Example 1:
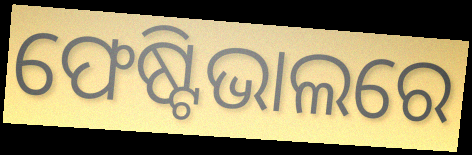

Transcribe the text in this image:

ଫେଷ୍ଟିଭାଲରେ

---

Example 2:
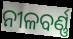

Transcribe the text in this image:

ନୀଳବର୍ଣ୍ଣ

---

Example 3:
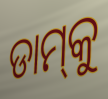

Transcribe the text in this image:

ଡାମ୍‍କୁ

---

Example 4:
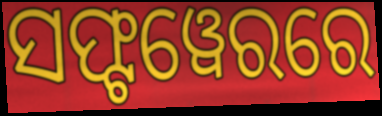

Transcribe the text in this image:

ସଫ୍ଟୱେରରେ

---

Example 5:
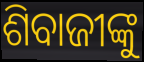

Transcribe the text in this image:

ଶିବାଜୀଙ୍କୁ